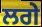
ਲਗੇ